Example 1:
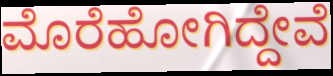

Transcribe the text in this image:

ಮೊರೆಹೋಗಿದ್ದೇವೆ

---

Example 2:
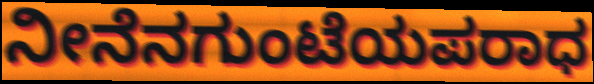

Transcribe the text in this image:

ನೀನೆನಗುಂಟೆಯಪರಾಧ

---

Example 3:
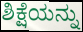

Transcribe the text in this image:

ಶಿಕ್ಷೆಯನ್ನು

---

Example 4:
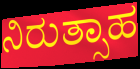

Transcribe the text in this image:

ನಿರುತ್ಸಾಹ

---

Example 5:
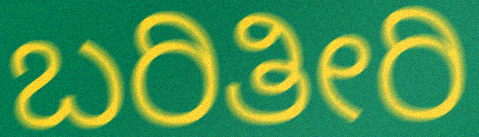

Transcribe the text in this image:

ಬರಿತೀರಿ